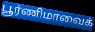
பூர்ணிமாவைக்